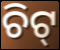
ଚିଟ୍